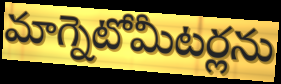
మాగ్నెటోమీటర్లను